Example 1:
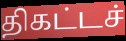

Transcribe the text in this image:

திகட்டச்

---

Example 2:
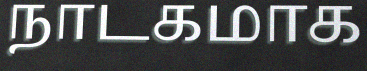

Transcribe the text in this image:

நாடகமாக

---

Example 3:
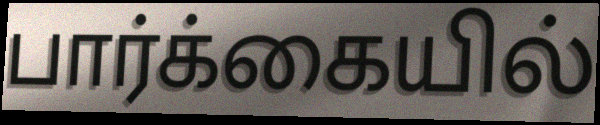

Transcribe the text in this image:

பார்க்கையில்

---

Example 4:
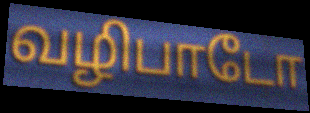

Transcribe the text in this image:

வழிபாடோ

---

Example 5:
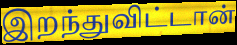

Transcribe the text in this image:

இறந்துவிட்டான்